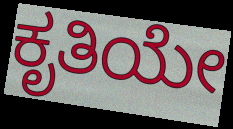
ಕೃತಿಯೇ